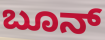
ಬೂನ್